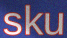
sku